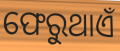
ଫେରୁଥାଏଁ